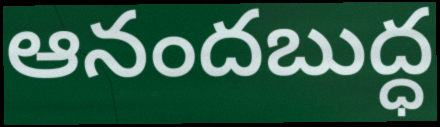
ఆనందబుద్ధ